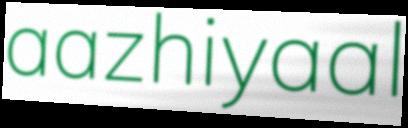
aazhiyaal